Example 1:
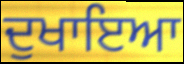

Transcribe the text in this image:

ਦੁਖਾਇਆ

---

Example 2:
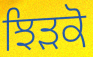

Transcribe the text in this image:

ਝਿੜਕੋ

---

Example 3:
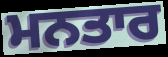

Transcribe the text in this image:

ਮਨਤਾਰ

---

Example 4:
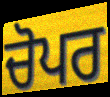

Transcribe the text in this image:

ਚੋਪਰ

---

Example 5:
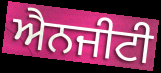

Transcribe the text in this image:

ਐਨਜੀਟੀ